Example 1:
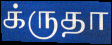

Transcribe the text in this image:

க்ருதா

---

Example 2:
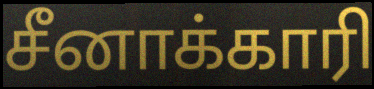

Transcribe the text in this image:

சீனாக்காரி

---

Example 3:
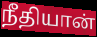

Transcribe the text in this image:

நீதியான்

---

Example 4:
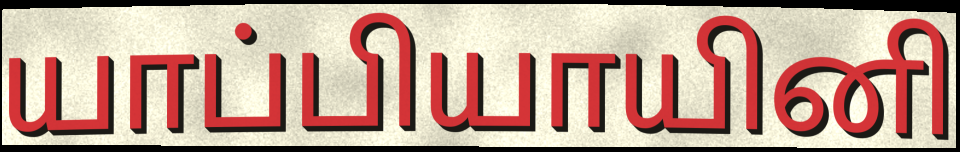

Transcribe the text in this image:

யாப்பியாயினி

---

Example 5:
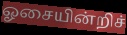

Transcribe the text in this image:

ஓசையின்றிச்